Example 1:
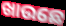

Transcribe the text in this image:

ଖାଉଛେ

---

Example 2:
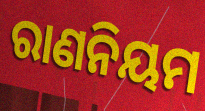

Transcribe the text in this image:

ରାଣନିୟମ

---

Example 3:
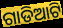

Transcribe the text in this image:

ଗାଡିଆଟି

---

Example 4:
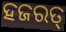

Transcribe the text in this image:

ହଜରତ୍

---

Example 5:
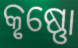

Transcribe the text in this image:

କୃଷ୍ଣୋ